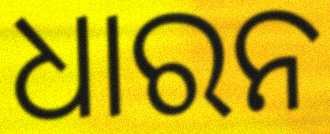
ଧାରନ